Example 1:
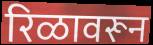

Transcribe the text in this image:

रिळावरून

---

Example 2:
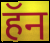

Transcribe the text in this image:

हॅन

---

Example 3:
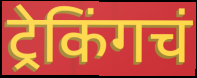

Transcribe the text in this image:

ट्रेकिंगचं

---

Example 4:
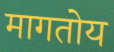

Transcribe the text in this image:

मागतोय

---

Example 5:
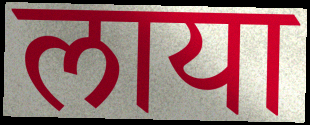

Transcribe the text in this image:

लाया